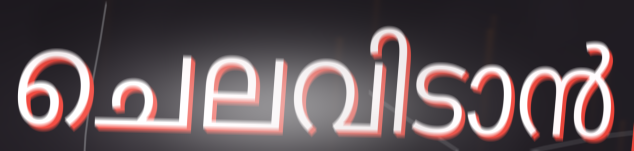
ചെലവിടാൻ